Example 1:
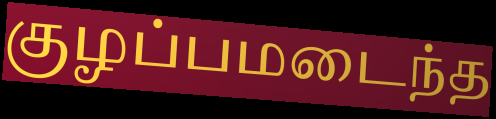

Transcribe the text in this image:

குழப்பமடைந்த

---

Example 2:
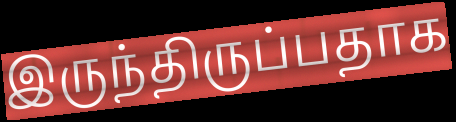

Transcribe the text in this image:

இருந்திருப்பதாக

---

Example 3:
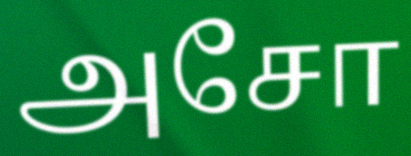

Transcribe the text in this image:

அசோ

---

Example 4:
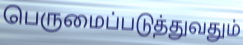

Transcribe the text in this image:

பெருமைப்படுத்துவதும்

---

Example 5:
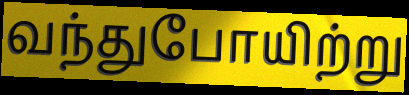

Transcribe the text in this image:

வந்துபோயிற்று